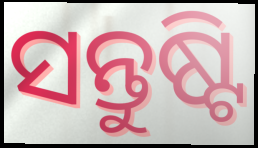
ସନ୍ତୁଷ୍ଟି